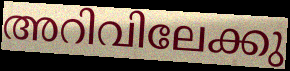
അറിവിലേക്കു